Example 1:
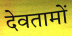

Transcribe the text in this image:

देवतामों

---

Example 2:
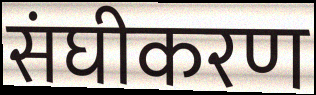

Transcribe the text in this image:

संघीकरण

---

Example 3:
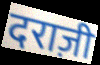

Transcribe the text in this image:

दराज़ी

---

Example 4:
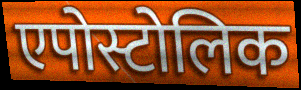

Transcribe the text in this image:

एपोस्टोलिक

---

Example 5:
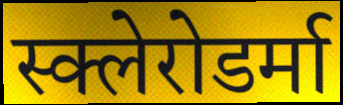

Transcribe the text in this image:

स्क्लेरोडर्मा